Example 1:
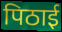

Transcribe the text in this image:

पिठाई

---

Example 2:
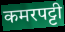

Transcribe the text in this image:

कमरपट्टी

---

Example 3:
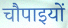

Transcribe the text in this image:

चौपाइयों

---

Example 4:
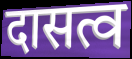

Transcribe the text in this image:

दासत्व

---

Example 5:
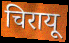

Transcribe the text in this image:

चिरायू